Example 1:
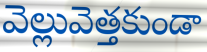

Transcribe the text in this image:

వెల్లువెత్తకుండా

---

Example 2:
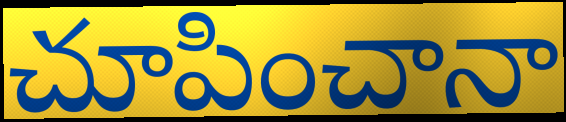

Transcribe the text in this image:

చూపించానా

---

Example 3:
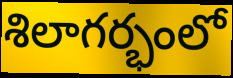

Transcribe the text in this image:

శిలాగర్భంలో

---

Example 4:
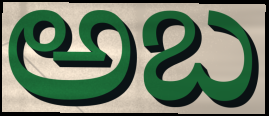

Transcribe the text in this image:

అబ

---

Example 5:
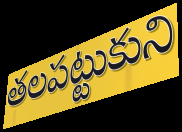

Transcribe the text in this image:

తలపట్టుకుని